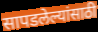
सापडलेल्यांसाठी